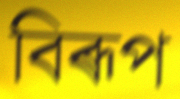
বিৰূপ